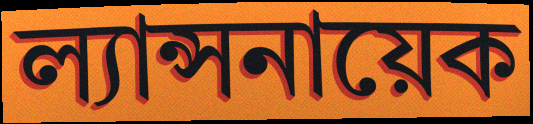
ল্যান্সনায়েক